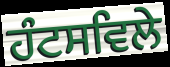
ਹੰਟਸਵਿਲੇ